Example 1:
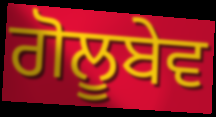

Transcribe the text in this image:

ਗੋਲੂਬੇਵ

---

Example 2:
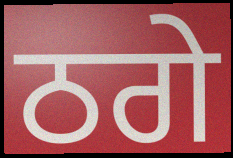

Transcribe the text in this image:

ਠਗੇ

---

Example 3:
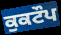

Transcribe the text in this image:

ਕੁਕਟੌਪ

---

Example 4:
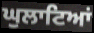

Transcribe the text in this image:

ਘੁਲਾਟਿਆਂ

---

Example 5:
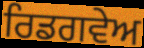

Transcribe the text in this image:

ਰਿਡਗਵੇਅ